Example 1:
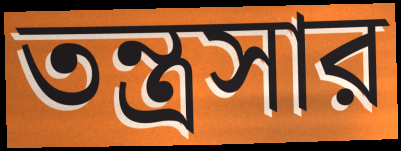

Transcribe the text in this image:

তন্ত্রসার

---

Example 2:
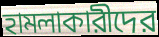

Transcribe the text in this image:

হামলাকারীদের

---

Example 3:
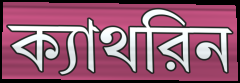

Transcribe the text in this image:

ক্যাথরিন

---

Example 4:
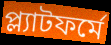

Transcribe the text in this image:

প্ল্যাটফর্মে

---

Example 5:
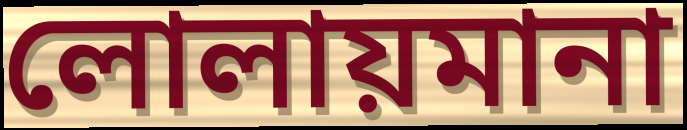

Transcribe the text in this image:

লোলায়মানা